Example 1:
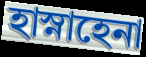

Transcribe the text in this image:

হাস্নাহেনা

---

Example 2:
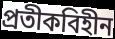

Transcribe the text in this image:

প্রতীকবিহীন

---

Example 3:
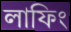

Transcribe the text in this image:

লাফিং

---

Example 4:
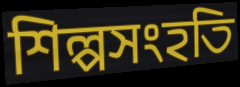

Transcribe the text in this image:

শিল্পসংহতি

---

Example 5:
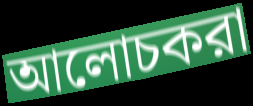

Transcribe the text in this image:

আলোচকরা